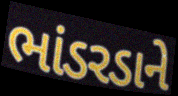
ભાંડરડાને